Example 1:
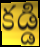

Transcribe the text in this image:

కడ్డి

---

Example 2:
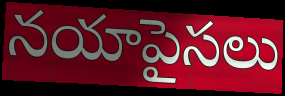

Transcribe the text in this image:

నయాపైసలు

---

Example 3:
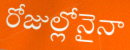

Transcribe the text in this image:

రోజుల్లోనైనా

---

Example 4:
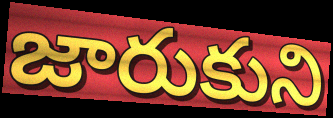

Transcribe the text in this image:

జారుకుని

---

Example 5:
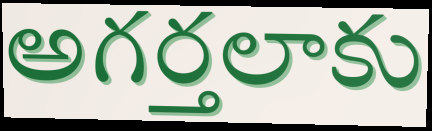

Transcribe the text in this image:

అగర్తలాకు